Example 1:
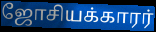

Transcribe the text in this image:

ஜோசியக்காரர்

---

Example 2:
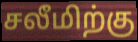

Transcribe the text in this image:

சலீமிற்கு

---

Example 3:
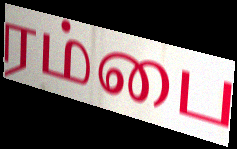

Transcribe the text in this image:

ரம்பை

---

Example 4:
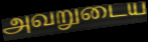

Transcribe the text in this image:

அவறுடைய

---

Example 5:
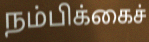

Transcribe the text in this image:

நம்பிக்கைச்